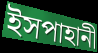
ইসপাহানী